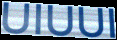
UIUUI